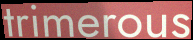
trimerous